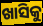
ଖାସିକୁ